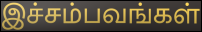
இச்சம்பவங்கள்